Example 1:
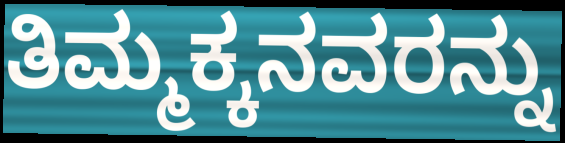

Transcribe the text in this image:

ತಿಮ್ಮಕ್ಕನವರನ್ನು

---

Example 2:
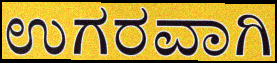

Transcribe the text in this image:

ಉಗರವಾಗಿ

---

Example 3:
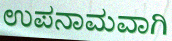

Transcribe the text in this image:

ಉಪನಾಮವಾಗಿ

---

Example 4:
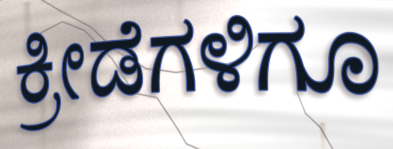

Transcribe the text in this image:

ಕ್ರೀಡೆಗಳಿಗೂ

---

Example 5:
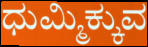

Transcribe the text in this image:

ಧುಮ್ಮಿಕ್ಕುವ